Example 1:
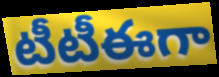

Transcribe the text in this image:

టీటీఈగా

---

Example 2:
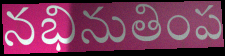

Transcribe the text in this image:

నభినుతింప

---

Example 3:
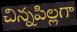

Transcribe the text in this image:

చిన్నపిల్లగా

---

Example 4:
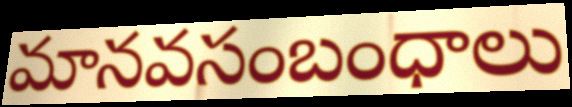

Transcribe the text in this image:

మానవసంబంధాలు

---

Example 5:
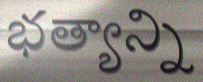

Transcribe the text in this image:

భత్యాన్ని